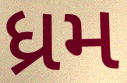
ધ્રમ